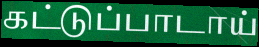
கட்டுப்பாடாய்